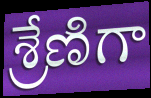
శ్రేణిగా